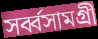
সর্ব্বসামগ্রী